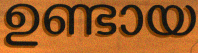
ഉണ്ടായ